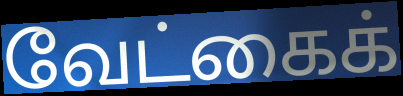
வேட்கைக்